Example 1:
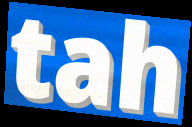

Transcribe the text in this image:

tah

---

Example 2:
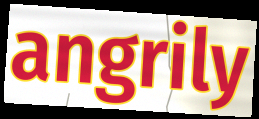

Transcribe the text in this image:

angrily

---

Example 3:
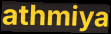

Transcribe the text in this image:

athmiya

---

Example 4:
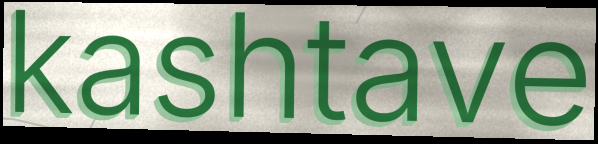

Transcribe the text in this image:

kashtave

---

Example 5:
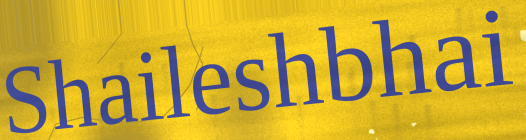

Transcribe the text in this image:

Shaileshbhai